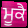
ਮੂਕੈ